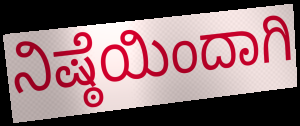
ನಿಷ್ಠೆಯಿಂದಾಗಿ